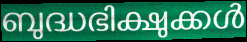
ബുദ്ധഭിക്ഷുക്കൾ